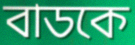
বাডকে